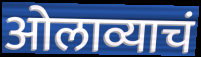
ओलाव्याचं